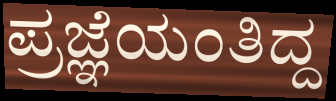
ಪ್ರಜ್ಞೆಯಂತಿದ್ದ